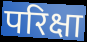
परिक्षा